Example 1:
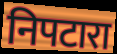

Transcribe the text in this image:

निपटारा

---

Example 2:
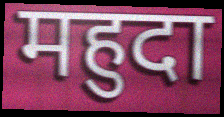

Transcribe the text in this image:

महुदा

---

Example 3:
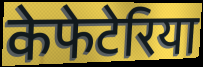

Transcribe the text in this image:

केफेटेरिया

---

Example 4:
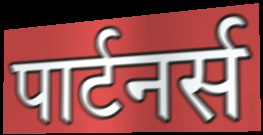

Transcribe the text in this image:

पार्टनर्स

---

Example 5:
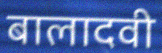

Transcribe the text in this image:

बालादवी